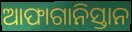
ଆଫାଗାନିସ୍ତାନ